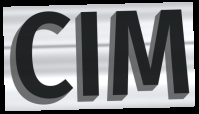
CIM